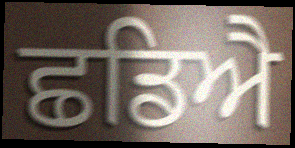
ਛਡਿਐ